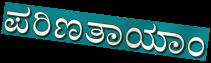
ಪರಿಣತಾಯಾಂ